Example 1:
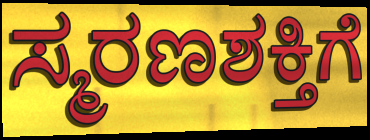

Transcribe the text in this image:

ಸ್ಮರಣಶಕ್ತಿಗೆ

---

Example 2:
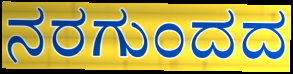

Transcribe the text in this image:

ನರಗುಂದದ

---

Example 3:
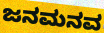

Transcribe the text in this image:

ಜನಮನವ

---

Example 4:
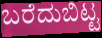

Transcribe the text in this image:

ಬರೆದುಬಿಟ್ಟ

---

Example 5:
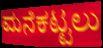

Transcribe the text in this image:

ಮನೆಕಟ್ಟಲು